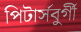
পিটার্সবুর্গী